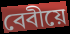
বেবীয়ে